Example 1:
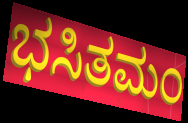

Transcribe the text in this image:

ಭಸಿತಮಂ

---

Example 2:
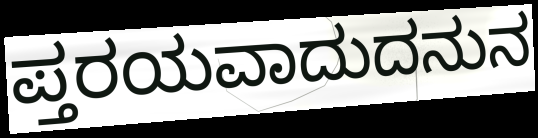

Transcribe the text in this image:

ಪ್ತರಯವಾದುದನುನ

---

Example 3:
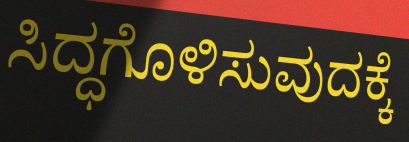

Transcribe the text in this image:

ಸಿದ್ಧಗೊಳಿಸುವುದಕ್ಕೆ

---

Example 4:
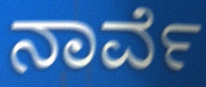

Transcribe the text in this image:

ನಾರ್ವೆ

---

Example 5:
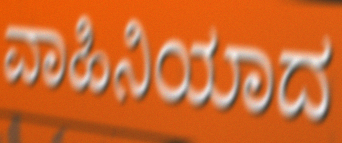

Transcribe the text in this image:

ವಾಹಿನಿಯಾದ